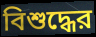
বিশুদ্ধের